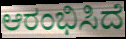
ಆರಂಭಿಸಿದೆ